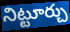
నిట్టూర్చు